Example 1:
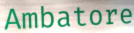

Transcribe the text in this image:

Ambatore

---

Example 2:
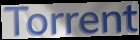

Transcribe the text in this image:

Torrent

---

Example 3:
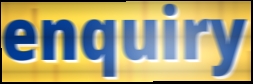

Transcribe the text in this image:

enquiry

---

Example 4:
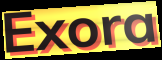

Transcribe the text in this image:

Exora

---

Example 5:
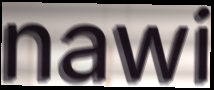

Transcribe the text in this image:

nawi